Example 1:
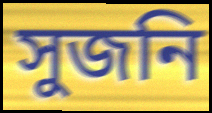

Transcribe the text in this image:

সুজনি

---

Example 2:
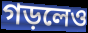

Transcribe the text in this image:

গড়লেও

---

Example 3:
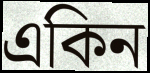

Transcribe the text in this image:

একিন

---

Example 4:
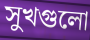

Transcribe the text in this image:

সুখগুলো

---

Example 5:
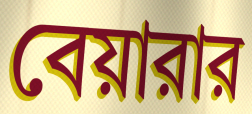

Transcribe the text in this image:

বেয়ারার